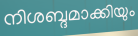
നിശബ്ദമാക്കിയും